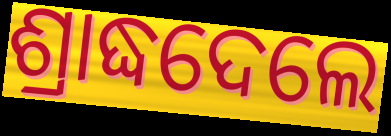
ଶ୍ରାଦ୍ଧଦେଲେ